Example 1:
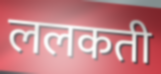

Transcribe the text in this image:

ललकती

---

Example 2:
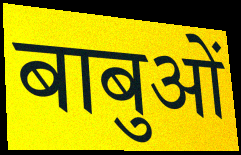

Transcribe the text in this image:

बाबुओं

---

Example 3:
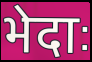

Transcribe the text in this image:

भेदाः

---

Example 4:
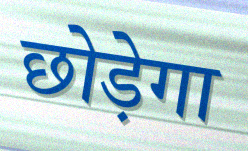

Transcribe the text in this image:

छोड़ेगा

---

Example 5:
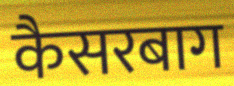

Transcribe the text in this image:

कैसरबाग